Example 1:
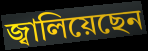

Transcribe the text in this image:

জ্বালিয়েছেন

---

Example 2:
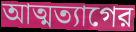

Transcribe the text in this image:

আত্মত্যাগের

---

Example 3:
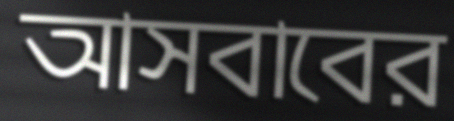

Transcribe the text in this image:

আসবাবের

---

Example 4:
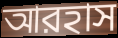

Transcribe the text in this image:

আরহাস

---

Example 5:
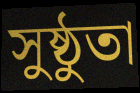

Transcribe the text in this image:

সুষ্ঠুতা